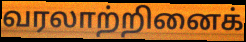
வரலாற்றினைக்